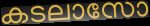
കടലാസോ